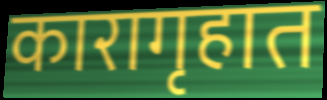
कारागृहात